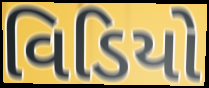
વિડિયો